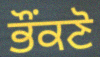
ਭੌਂਕਣੋ